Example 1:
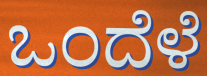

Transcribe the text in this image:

ಒಂದೆಳೆ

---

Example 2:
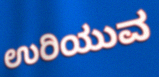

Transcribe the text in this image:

ಉರಿಯುವ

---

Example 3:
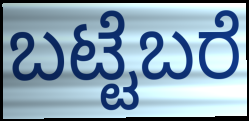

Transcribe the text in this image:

ಬಟ್ಟೆಬರೆ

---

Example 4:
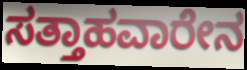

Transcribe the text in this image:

ಸತ್ತಾಹವಾರೇನ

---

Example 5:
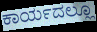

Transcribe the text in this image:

ಕಾರ್ಯದಲ್ಲೂ